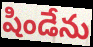
షిండేను